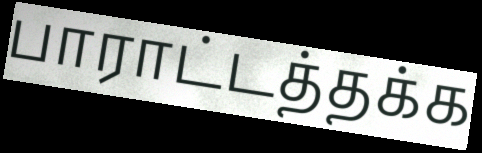
பாராட்டத்தக்க